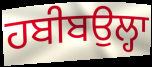
ਹਬੀਬਉਲ੍ਹਾ